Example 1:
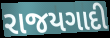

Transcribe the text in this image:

રાજયગાદી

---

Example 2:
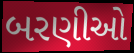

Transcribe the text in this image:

બરણીઓ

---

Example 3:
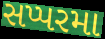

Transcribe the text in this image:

સપ્પરમા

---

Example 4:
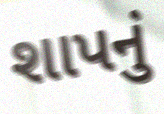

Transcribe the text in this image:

શાપનું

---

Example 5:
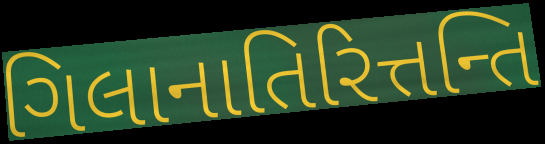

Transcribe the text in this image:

ગિલાનાતિરિત્તન્તિ